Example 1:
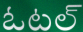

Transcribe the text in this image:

ఓటల్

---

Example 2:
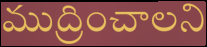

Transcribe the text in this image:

ముద్రించాలని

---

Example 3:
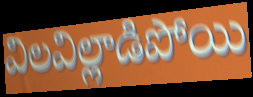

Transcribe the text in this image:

విలవిల్లాడిపోయి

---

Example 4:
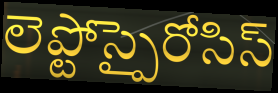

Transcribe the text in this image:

లెప్టోస్పైరోసిస్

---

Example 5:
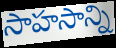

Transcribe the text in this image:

సాహసాన్ని